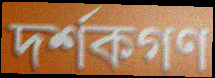
দর্শকগণ